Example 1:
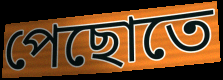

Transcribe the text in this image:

পেছোতে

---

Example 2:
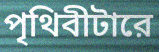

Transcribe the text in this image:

পৃথিবীটারে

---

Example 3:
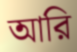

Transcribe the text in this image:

আরি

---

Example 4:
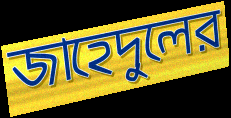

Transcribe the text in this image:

জাহেদুলের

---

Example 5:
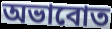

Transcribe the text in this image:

অভাবোত